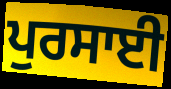
ਪੁਰਸਾਈ